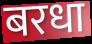
बरधा